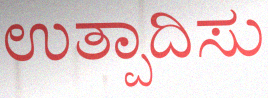
ಉತ್ಪಾದಿಸು